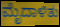
ಮೈದಾಳಿತು